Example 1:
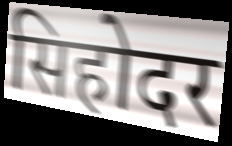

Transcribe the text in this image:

सिहोदर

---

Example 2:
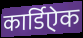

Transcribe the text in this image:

कार्डिऐक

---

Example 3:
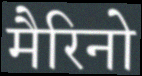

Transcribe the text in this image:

मैरिनो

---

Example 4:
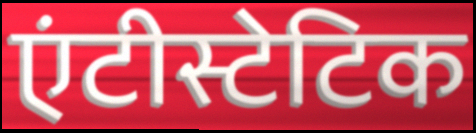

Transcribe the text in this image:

एंटीस्टेटिक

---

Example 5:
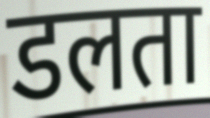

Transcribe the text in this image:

डलता